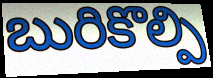
బురికొల్పి